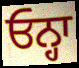
ਓਨ੍ਹਾ